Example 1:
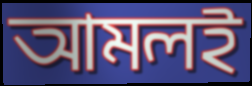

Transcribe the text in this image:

আমলই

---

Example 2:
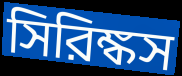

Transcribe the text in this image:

সিরিঙ্কস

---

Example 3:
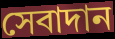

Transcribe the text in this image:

সেবাদান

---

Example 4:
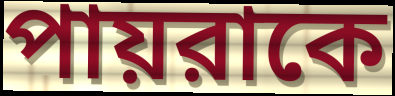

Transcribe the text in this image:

পায়রাকে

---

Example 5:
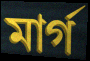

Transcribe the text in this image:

মার্গ